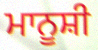
ਮਾਨੂਸ਼ੀ